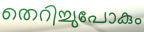
തെറിച്ചുപോകും